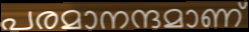
പരമാനന്ദമാണ്